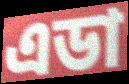
এডা